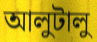
আলুটালু